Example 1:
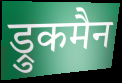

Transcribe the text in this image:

ड्रुकमैन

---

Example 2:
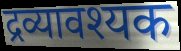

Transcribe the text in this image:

द्रव्यावश्यक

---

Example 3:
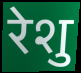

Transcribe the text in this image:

रेशु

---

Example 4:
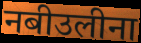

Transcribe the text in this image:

नबीउलीना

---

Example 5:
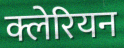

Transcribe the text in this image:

क्लेरियन